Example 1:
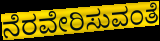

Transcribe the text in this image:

ನೆರವೇರಿಸುವಂತೆ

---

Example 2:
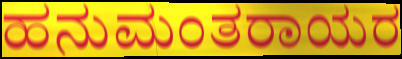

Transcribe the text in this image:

ಹನುಮಂತರಾಯರ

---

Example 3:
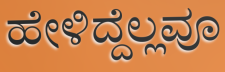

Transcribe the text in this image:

ಹೇಳಿದ್ದೆಲ್ಲವೂ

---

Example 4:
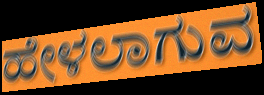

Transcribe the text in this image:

ಹೇಳಲಾಗುವ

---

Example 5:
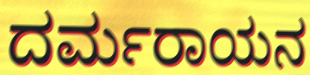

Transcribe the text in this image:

ದರ್ಮರಾಯನ